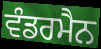
ਵੰਡਰਮੈਨ